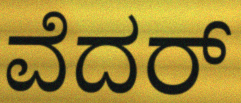
ವೆದರ್